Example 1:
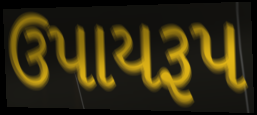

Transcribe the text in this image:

ઉપાયરૂપ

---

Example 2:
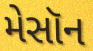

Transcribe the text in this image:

મેસૉન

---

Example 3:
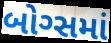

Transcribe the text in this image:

બોગ્સમાં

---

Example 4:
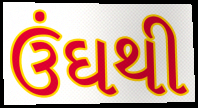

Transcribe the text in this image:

ઉંઘથી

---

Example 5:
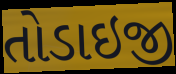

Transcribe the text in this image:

તોડાઇજી